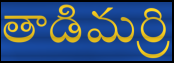
తాడిమర్రి